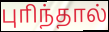
புரிந்தால்